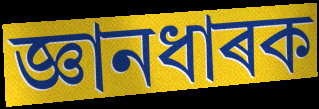
জ্ঞানধাৰক